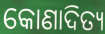
କୋଣାଦିତ୍ୟ